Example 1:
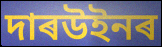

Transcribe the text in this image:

দাৰউইনৰ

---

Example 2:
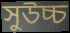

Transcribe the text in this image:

সুউচ্চ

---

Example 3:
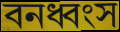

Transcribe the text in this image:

বনধ্বংস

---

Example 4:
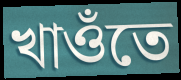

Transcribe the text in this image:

খাওঁতে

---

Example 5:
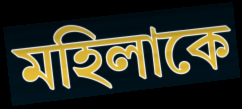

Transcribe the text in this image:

মহিলাকে